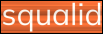
squalid